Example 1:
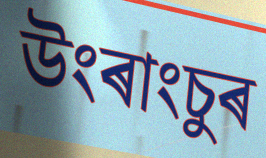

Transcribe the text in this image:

উংৰাংচুৰ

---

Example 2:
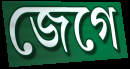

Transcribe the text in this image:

জেগে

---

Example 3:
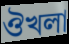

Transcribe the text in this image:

ঔখলা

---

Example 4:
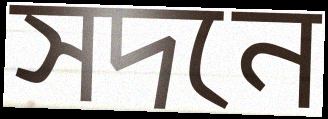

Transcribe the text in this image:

সদনে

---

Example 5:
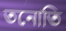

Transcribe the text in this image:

তনোতি